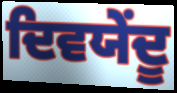
ਦਿਵਯੇਂਦੂ